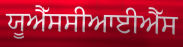
ਯੂਐੱਸਸੀਆਈਐੱਸ